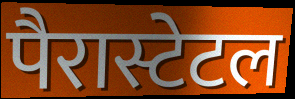
पैरास्टेटल